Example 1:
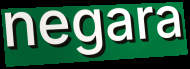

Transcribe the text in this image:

negara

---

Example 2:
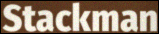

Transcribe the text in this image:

Stackman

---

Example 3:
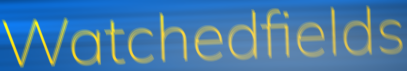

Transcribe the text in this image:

Watchedfields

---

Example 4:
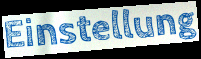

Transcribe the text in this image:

Einstellung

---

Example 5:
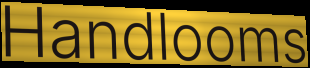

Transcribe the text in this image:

Handlooms